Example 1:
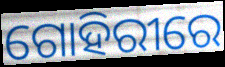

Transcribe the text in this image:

ଗୋହିରୀରେ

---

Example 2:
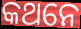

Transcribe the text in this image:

କଥନେ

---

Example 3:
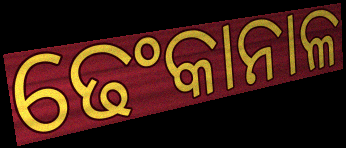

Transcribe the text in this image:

ଢେଂକାନାଳ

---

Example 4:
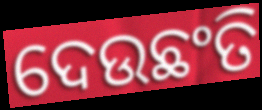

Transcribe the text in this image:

ଦେଉଛଂତି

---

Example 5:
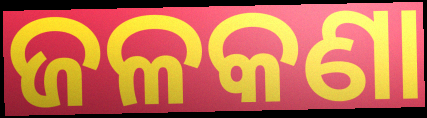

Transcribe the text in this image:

ଜଳକଣା